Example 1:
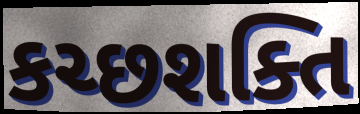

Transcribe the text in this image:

કચ્છશક્તિ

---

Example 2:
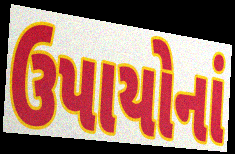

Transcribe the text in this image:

ઉપાયોનાં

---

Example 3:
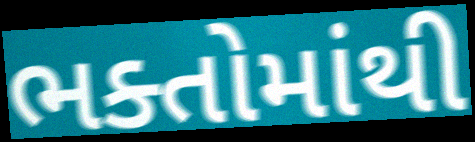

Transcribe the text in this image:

ભક્તોમાંથી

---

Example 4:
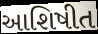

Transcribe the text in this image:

આશિષીત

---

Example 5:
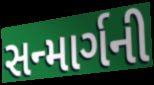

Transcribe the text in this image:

સન્માર્ગની